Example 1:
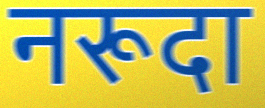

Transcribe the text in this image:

नरूदा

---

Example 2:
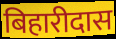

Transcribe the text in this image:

बिहारीदास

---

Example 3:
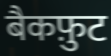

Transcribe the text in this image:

बैकफ़ुट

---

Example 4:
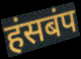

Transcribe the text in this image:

हंसबंप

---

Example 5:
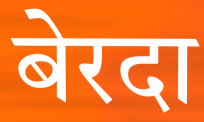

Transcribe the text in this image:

बेरदा